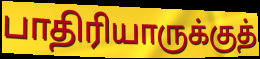
பாதிரியாருக்குத்